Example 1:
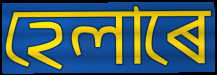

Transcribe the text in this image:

হেলাৰে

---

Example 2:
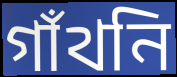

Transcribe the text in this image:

গাঁথনি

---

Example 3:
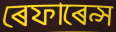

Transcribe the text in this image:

ৰেফাৰেন্স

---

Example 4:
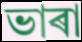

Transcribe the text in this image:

ভাৰা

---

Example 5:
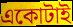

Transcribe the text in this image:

একোটাই